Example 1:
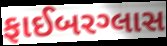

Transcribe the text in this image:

ફાઈબરગ્લાસ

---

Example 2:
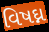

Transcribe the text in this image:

વિષઘ્ન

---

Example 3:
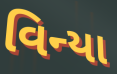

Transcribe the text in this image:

વિન્યા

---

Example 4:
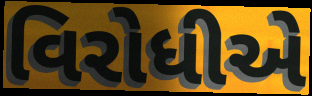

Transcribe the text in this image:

વિરોધીએ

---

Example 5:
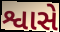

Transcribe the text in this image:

શ્વાસે